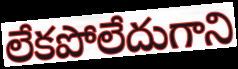
లేకపోలేదుగాని